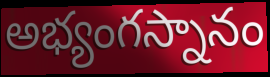
అభ్యంగస్నానం